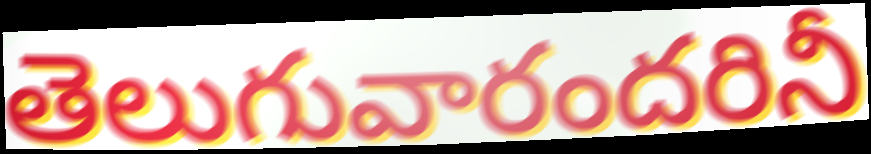
తెలుగువారందరినీ